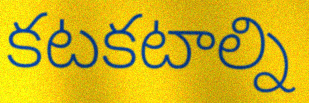
కటకటాల్ని